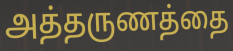
அத்தருணத்தை